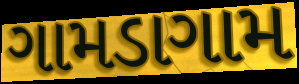
ગામડાગામ